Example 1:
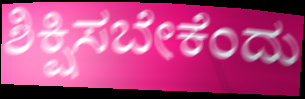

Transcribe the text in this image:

ಶಿಕ್ಷಿಸಬೇಕೆಂದು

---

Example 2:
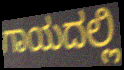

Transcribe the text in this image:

ಗಾಯದಲ್ಲಿ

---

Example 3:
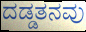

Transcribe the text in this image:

ದಡ್ಡತನವು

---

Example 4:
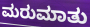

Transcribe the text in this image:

ಮರುಮಾತು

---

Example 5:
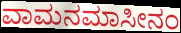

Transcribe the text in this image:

ವಾಮನಮಾಸೀನಂ